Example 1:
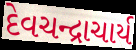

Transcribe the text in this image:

દેવચન્દ્રાચાર્ય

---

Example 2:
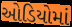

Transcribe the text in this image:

ઓડિયોમાં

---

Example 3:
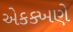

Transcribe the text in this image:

એકક્ખણે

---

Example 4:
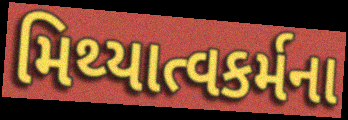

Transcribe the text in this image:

મિથ્યાત્વકર્મના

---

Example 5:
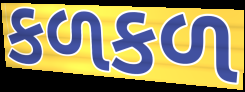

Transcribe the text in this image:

કળકળ